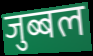
जुब्बल